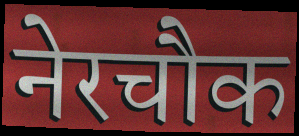
नेरचौक